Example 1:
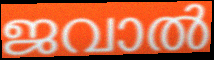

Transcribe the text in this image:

ജവാൽ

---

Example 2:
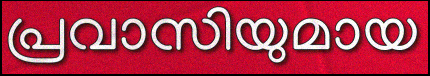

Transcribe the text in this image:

പ്രവാസിയുമായ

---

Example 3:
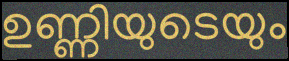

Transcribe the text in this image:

ഉണ്ണിയുടെയും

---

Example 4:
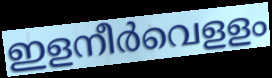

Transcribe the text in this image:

ഇളനീർവെളളം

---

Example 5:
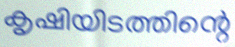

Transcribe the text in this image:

കൃഷിയിടത്തിന്റെ